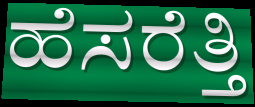
ಹೆಸರೆತ್ತಿ